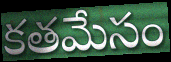
కతమేసం